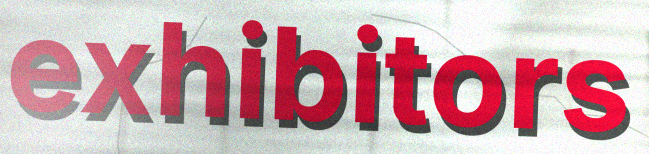
exhibitors